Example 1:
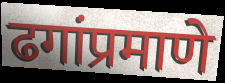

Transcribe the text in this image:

ढगांप्रमाणे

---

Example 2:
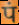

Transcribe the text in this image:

पं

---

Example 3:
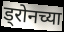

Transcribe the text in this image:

ड्रोनच्या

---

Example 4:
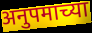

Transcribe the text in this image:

अनुपमाच्या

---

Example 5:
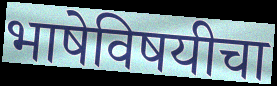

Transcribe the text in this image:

भाषेविषयीचा